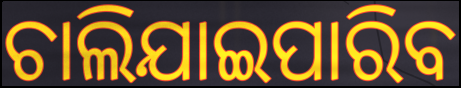
ଚାଲିଯାଇପାରିବ